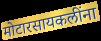
मोटारसायकलींना